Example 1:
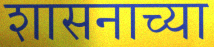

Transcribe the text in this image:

शासनाच्या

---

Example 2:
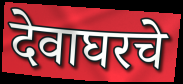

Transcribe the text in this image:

देवाघरचे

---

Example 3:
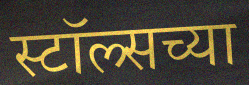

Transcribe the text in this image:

स्टॉल्सच्या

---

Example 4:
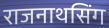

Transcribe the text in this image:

राजनाथसिंग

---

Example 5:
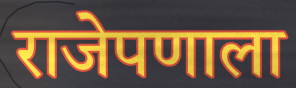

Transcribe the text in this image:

राजेपणाला